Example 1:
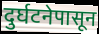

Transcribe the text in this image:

दुर्घटनेपासून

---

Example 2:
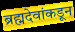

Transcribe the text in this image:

ब्रह्मदेवांकडून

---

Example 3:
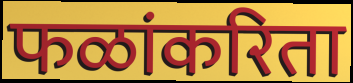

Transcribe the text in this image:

फळांकरिता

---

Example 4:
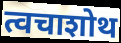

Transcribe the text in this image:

त्वचाशोथ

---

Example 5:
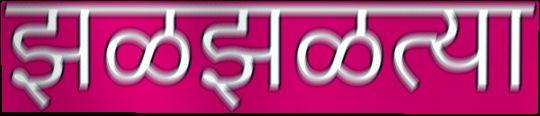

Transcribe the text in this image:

झळझळत्या